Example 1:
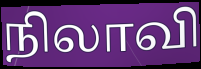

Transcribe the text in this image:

நிலாவி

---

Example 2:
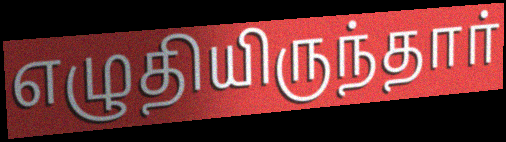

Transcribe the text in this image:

எழுதியிருந்தார்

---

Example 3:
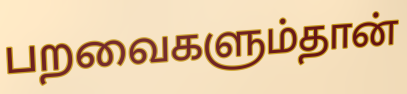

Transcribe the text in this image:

பறவைகளும்தான்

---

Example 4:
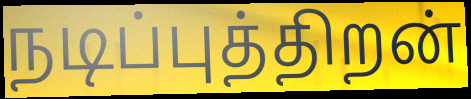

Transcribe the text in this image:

நடிப்புத்திறன்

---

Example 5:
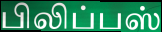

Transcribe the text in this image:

பிலிப்பஸ்